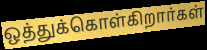
ஒத்துக்கொள்கிறார்கள்